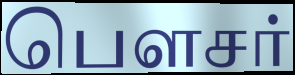
பௌசர்